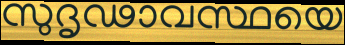
സുദൃഢാവസ്ഥയെ